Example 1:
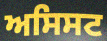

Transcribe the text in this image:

ਅਸਿਸਟ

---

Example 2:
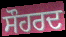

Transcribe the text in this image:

ਸੌਹਰਦ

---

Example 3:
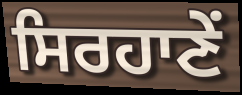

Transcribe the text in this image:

ਸਿਰਹਾਣੇਂ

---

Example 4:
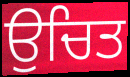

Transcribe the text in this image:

ਉਚਿਤ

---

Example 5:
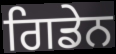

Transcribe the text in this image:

ਗਿਡੇਨ